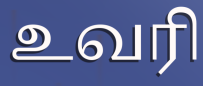
உவரி